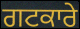
ਗਟਕਾਰੇ